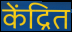
केंद्रित